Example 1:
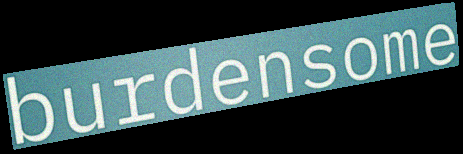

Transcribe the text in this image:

burdensome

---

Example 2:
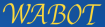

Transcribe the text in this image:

WABOT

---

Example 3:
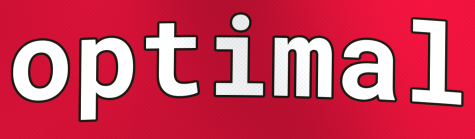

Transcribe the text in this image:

optimal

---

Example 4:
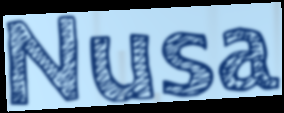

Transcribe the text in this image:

Nusa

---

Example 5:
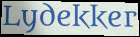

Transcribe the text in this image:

Lydekker